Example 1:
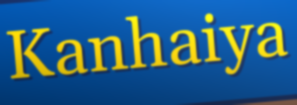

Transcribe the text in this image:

Kanhaiya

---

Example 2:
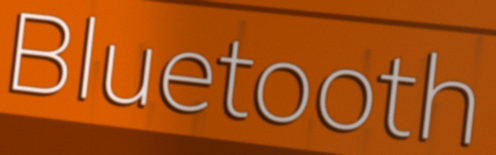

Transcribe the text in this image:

Bluetooth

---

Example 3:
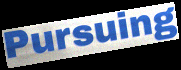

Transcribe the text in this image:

Pursuing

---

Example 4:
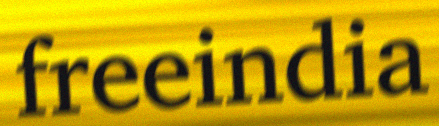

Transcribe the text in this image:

freeindia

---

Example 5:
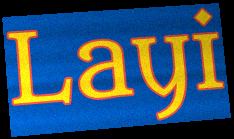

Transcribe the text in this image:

Layi